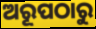
ଅରୂପଠାରୁ